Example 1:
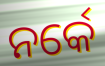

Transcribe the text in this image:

ନର୍କେ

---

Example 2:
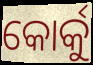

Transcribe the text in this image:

କୋର୍କୁ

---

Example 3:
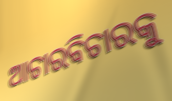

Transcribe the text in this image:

ଆଚାରବିଚାରକୁ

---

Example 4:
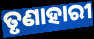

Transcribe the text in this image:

ତୃଣାହାରୀ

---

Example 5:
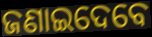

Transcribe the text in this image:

ଜଣାଇଦେବେ